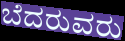
ಬೆದರುವರು